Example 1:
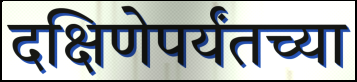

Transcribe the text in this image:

दक्षिणेपर्यंतच्या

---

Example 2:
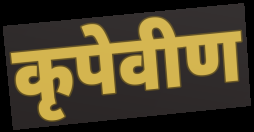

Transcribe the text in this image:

कृपेवीण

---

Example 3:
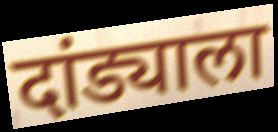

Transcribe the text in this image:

दांड्याला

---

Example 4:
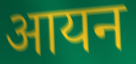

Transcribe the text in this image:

आयन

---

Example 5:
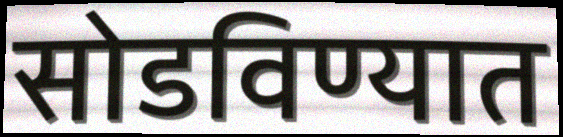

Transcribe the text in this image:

सोडविण्यात